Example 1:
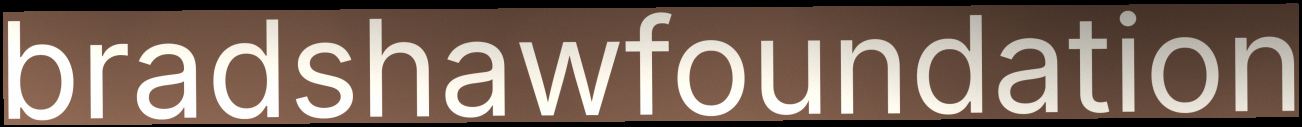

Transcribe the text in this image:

bradshawfoundation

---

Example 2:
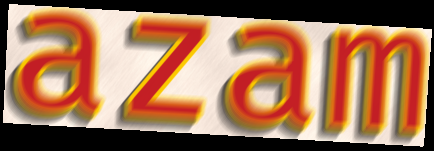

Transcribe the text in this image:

azam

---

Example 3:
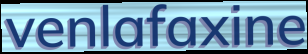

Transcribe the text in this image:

venlafaxine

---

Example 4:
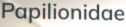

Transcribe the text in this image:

Papilionidae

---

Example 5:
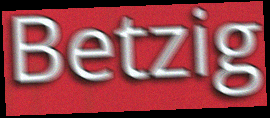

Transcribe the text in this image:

Betzig